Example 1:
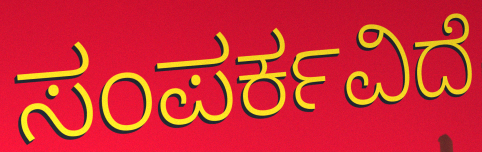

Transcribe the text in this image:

ಸಂಪರ್ಕವಿದೆ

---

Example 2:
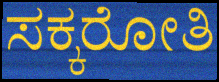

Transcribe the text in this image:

ಸಕ್ಕರೋತಿ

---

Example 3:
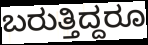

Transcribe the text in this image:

ಬರುತ್ತಿದ್ದರೂ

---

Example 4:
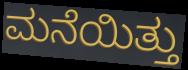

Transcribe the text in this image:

ಮನೆಯಿತ್ತು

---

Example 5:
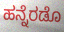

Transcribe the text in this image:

ಹನ್ನೆರಡೊ